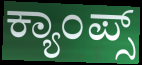
ಕ್ಯಾಂಪ್ಸ್